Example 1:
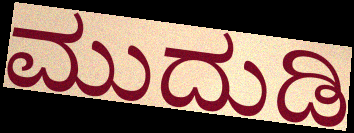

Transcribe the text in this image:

ಮುದುಡಿ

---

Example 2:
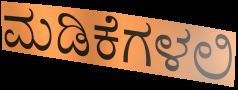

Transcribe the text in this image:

ಮಡಿಕೆಗಳಲಿ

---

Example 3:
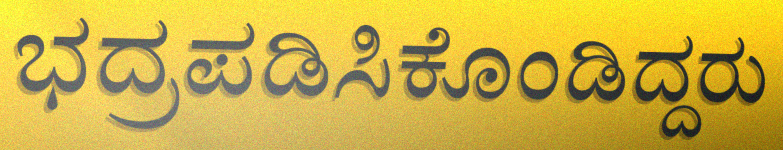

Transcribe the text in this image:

ಭದ್ರಪಡಿಸಿಕೊಂಡಿದ್ದರು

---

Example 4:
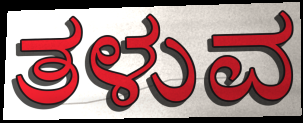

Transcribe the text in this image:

ತಳುವ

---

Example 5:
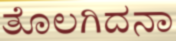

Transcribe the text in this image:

ತೊಲಗಿದನಾ